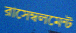
রাসেম্বলমেন্ট